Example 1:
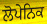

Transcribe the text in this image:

ਲੋਪੇਨਿਕ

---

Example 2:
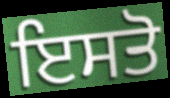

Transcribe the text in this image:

ਇਸਤੋ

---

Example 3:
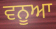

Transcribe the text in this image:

ਵਨੂਆ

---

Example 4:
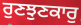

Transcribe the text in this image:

ਰੁਣਝੁਣਕਾਰੁ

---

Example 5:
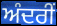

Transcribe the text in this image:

ਅੰਦਰੀਂ